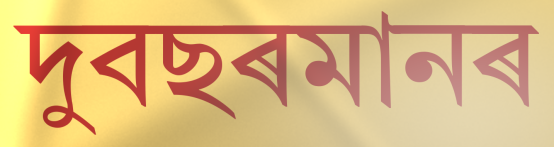
দুবছৰমানৰ